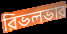
রিভলভার